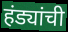
हंड्यांची